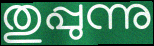
തുപ്പുന്നു